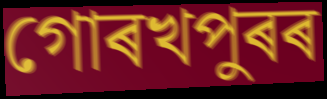
গোৰখপুৰৰ